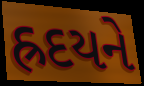
હ્રદયને